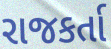
રાજકર્તા